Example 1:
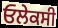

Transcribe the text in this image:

ਓਲੇਕਸੀ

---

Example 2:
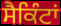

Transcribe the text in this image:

ਸੈਕਿੰਟਾਂ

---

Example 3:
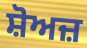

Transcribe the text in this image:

ਸ਼ੋਅਜ਼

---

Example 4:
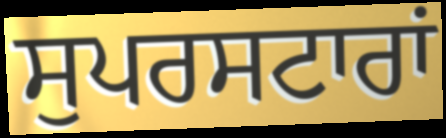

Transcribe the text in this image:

ਸੁਪਰਸਟਾਰਾਂ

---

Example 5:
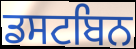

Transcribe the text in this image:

ਡਸਟਬਿਨ